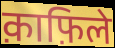
क़ाफ़िले